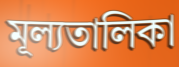
মূল্যতালিকা